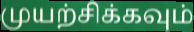
முயற்சிக்கவும்